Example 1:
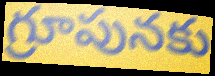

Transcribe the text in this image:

గ్రూపునకు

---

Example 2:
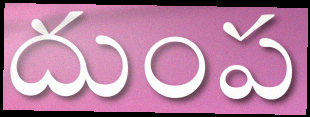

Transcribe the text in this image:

దుంప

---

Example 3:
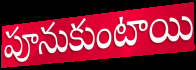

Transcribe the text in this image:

పూనుకుంటాయి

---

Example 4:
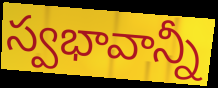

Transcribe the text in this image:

స్వభావాన్నీ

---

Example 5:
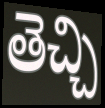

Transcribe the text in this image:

తెచ్చి